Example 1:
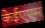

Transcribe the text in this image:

केईएएम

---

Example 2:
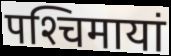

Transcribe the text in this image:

पश्चिमायां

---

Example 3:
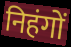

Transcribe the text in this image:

निहंगों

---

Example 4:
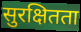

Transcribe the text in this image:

सुरक्षितता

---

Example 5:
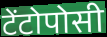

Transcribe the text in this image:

टेंटोपोसी